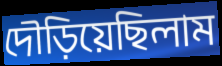
দৌড়িয়েছিলাম